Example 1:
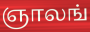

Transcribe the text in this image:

ஞாலங்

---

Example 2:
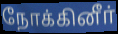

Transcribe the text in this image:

நோக்கினீர்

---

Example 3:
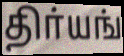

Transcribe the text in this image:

திர்யங்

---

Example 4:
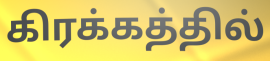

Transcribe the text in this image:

கிரக்கத்தில்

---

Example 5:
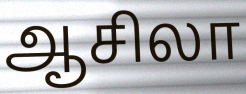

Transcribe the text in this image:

ஆசிலா